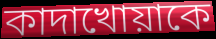
কাদাখোয়াকে